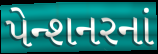
પેન્શનરનાં